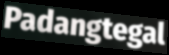
Padangtegal